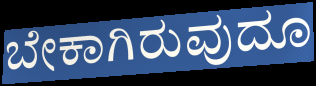
ಬೇಕಾಗಿರುವುದೂ